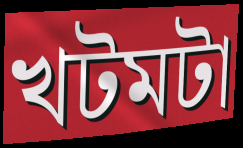
খটমটা